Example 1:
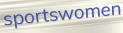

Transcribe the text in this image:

sportswomen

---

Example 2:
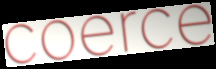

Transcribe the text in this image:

coerce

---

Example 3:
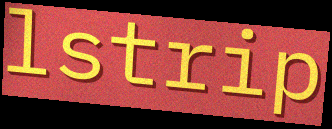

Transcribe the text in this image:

lstrip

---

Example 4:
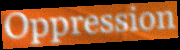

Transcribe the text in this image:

Oppression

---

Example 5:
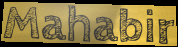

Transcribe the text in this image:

Mahabir